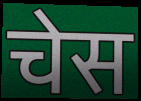
चेस